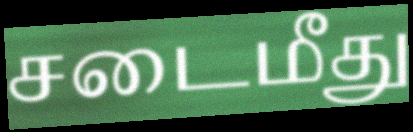
சடைமீது